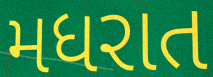
મધરાત